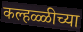
कल्हळ्ळीच्या